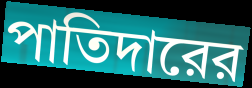
পাতিদারের